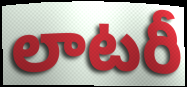
లాటరీ